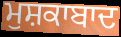
ਮੁਸ਼ਕਾਬਾਦ